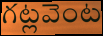
గట్లవెంట